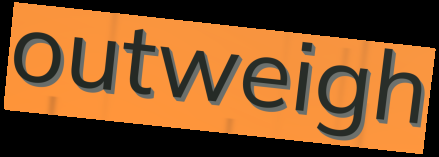
outweigh